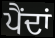
ਪੈਂਦਾਂ